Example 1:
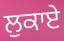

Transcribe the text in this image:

ਲੁਕਾਏ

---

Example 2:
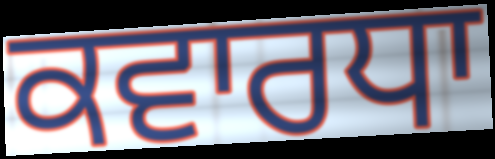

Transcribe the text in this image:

ਕਵਾਰਧਾ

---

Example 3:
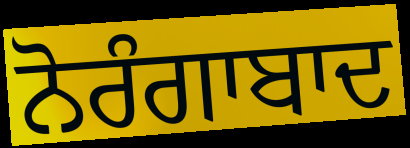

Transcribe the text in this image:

ਨੋਰੰਗਾਬਾਦ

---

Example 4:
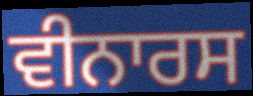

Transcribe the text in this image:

ਵੀਨਾਰਸ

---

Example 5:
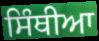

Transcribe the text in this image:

ਸਿੰਥੀਆ